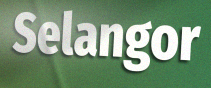
Selangor